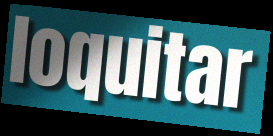
loquitar